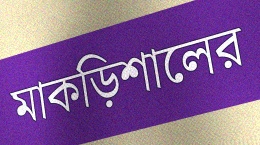
মাকড়িশালের